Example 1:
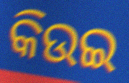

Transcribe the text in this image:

କିଉଇ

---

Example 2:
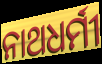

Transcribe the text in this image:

ନାଥଧର୍ମୀ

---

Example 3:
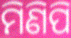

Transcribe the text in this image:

ମିଣିପି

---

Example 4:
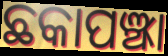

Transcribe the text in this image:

ଛକାପଞ୍ଝା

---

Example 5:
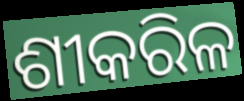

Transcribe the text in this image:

ଶୀକରିଳ